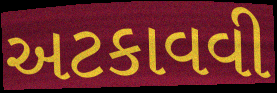
અટકાવવી